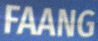
FAANG